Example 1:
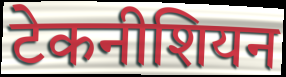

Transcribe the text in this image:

टेकनीशियन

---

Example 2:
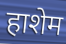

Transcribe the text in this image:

हाशेम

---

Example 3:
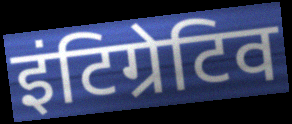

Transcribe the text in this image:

इंटिग्रेटिव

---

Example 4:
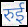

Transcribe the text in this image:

रुई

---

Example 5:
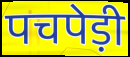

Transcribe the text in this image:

पचपेड़ी